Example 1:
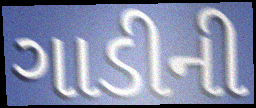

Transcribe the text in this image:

ગાડીની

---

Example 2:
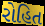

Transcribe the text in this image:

રોહિત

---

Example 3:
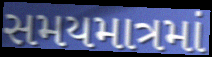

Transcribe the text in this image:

સમયમાત્રમાં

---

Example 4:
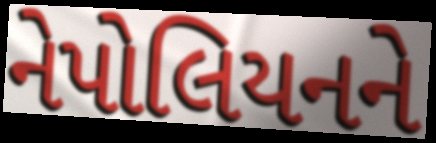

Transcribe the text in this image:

નેપોલિયનને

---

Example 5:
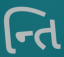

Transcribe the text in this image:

ન્તિ